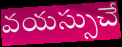
వయస్సుచే